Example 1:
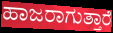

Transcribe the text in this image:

ಹಾಜರಾಗುತ್ತಾರೆ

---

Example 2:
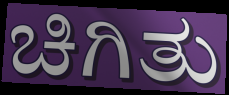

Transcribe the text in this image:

ಚಿಗಿತು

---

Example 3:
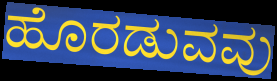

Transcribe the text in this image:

ಹೊರಡುವವು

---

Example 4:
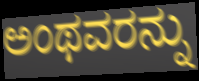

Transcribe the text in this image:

ಅಂಥವರನ್ನು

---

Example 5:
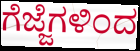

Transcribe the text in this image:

ಗೆಜ್ಜೆಗಳಿಂದ